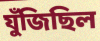
যুঁজিছিল